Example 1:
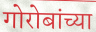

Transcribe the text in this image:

गोरोबांच्या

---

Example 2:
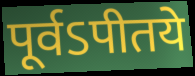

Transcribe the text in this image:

पूर्वऽपीतये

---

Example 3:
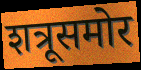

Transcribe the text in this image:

शत्रूसमोर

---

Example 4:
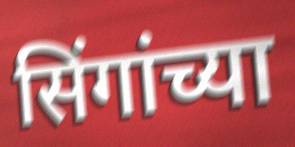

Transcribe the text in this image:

सिंगांच्या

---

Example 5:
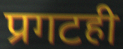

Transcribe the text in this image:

प्रगटही